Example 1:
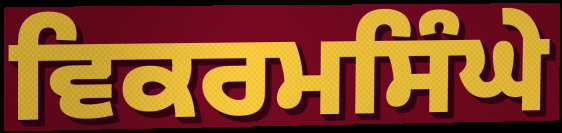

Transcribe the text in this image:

ਵਿਕਰਮਸਿੰਘੇ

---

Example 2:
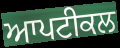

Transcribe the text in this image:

ਆਪਟੀਕਲ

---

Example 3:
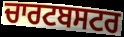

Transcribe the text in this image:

ਚਾਰਟਬਸਟਰ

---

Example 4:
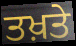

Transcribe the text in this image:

ਤਖ਼ਤੇ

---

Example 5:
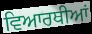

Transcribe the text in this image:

ਵਿਆਰਥੀਆਂ